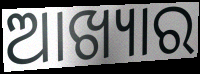
ଆଖ୍ୟାର